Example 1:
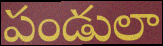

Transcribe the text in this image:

పండులా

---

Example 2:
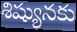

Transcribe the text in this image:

శిష్యునకు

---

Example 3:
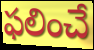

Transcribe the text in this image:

ఫలించే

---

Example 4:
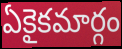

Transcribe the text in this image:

ఏకైకమార్గం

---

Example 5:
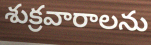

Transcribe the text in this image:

శుక్రవారాలను